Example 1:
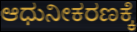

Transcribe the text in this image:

ಆಧುನೀಕರಣಕ್ಕೆ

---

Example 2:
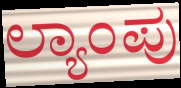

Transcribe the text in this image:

ಲ್ಯಾಂಪು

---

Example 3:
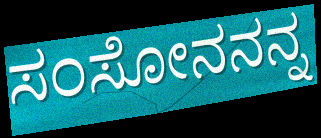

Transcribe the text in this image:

ಸಂಸೋನನನ್ನ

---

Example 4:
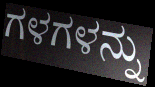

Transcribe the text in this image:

ಗಳಗಳನ್ನು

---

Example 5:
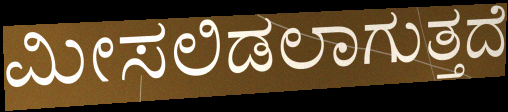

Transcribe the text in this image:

ಮೀಸಲಿಡಲಾಗುತ್ತದೆ